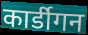
कार्डीगन